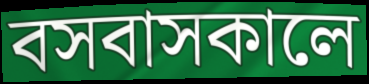
বসবাসকালে